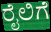
ರೈಲಿಗೆ